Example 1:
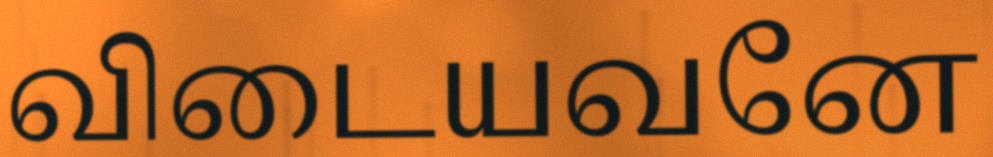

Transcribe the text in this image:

விடையவனே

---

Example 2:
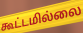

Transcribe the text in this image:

கூட்டமில்லை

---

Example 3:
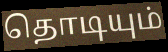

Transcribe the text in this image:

தொடியும்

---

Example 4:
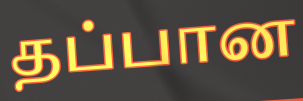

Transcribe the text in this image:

தப்பான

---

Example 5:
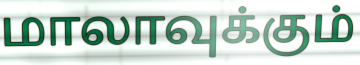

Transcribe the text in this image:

மாலாவுக்கும்